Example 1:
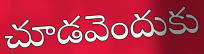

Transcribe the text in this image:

చూడవెందుకు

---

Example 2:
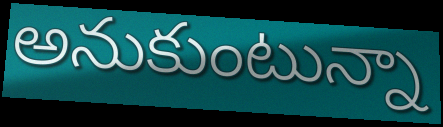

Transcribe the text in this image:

అనుకుంటున్నా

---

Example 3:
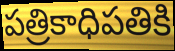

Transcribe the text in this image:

పత్రికాధిపతికి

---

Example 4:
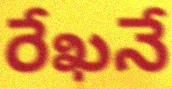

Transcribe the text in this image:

రేఖనే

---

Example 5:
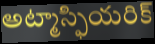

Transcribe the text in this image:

అట్మాస్ఫియరిక్